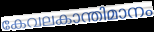
കേവലകാന്തിമാനം